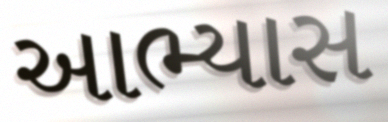
આભ્યાસ